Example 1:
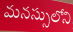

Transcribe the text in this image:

మనస్సులోని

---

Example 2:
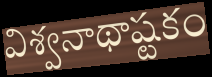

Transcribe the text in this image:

విశ్వనాథాష్టకం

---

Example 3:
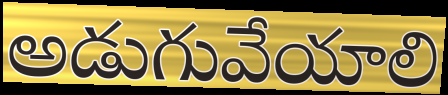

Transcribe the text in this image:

అడుగువేయాలి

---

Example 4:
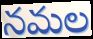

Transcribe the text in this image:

నమల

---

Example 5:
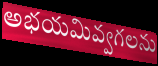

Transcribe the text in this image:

అభయమివ్వగలను